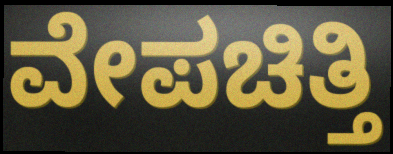
ವೇಪಚಿತ್ತಿ